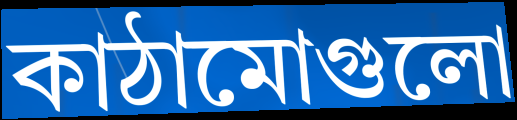
কাঠামোগুলো